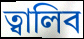
ত্বালিব